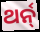
ଥର୍ନ୍